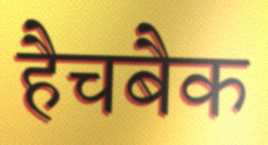
हैचबैक